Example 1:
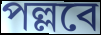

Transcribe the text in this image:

পল্লবে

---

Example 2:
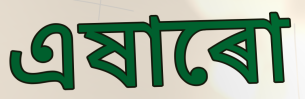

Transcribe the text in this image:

এষাৰো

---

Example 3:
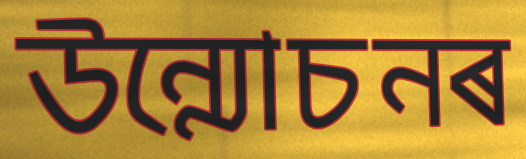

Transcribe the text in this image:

উন্মোচনৰ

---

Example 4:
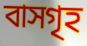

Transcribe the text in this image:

বাসগৃহ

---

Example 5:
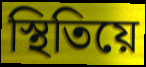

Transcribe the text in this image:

স্থিতিয়ে